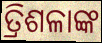
ତ୍ରିଶଳାଙ୍କ